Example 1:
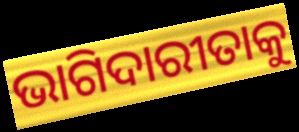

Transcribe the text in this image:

ଭାଗିଦାରୀତାକୁ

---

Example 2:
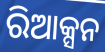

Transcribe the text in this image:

ରିଆକ୍ସନ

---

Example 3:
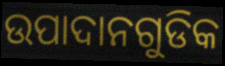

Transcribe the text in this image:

ଉପାଦାନଗୁଡିକ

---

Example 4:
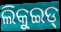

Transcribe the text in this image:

ଲିକୁଇଡ୍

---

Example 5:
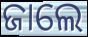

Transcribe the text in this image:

ଜାଲେ